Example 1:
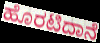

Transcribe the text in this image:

ಹೊರಟಿದಾನೆ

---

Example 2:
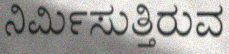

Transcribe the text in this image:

ನಿರ್ಮಿಸುತ್ತಿರುವ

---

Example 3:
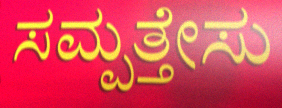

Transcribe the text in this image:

ಸಮ್ಪತ್ತೇಸು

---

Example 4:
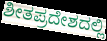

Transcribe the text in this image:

ಶೀತಪ್ರದೇಶದಲ್ಲಿ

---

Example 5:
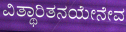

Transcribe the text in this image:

ವಿತ್ಥಾರಿತನಯೇನೇವ